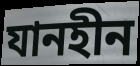
যানহীন